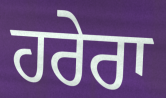
ਹਰੇਰਾ